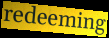
redeeming